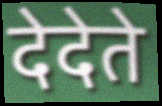
देदेते